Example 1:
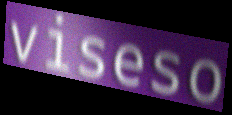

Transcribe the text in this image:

viseso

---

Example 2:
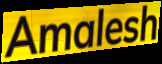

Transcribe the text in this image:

Amalesh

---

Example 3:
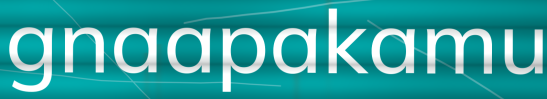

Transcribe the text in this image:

gnaapakamu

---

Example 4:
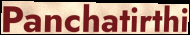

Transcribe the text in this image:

Panchatirthi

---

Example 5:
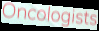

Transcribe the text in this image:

Oncologists